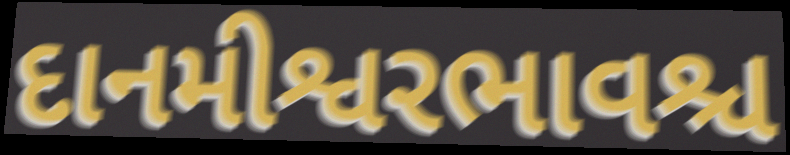
દાનમીશ્વરભાવશ્ચ